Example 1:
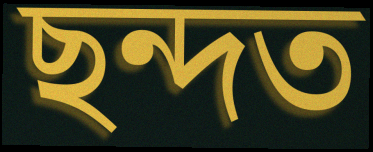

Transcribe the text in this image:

ছন্দত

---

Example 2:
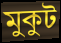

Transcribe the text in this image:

মুকুট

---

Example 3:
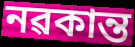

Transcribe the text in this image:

নৱকান্ত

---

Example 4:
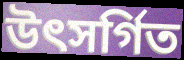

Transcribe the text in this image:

উৎসৰ্গিত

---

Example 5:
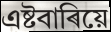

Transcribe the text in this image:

এষ্টবাৰিয়ে